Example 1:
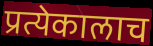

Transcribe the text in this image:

प्रत्येकालाच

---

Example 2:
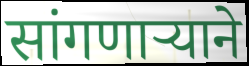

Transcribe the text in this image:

सांगणार्‍याने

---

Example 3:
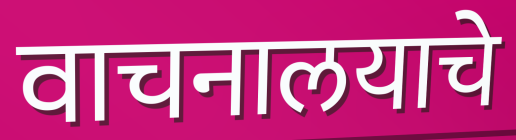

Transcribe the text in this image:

वाचनालयाचे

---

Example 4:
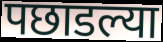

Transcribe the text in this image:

पछाडल्या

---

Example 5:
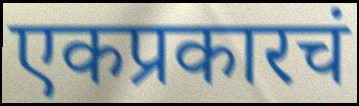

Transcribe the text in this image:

एकप्रकारचं